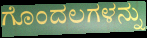
ಗೊಂದಲಗಳನ್ನು